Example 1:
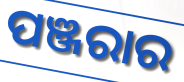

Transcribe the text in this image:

ପଞ୍ଜରାର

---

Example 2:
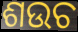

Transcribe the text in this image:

ଶଉଚ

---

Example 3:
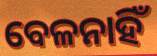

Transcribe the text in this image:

ବେଳନାହିଁ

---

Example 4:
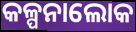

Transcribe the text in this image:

କଳ୍ପନାଲୋକ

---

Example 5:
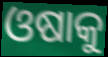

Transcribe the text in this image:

ଓଷାକୁ